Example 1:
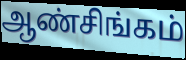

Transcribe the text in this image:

ஆண்சிங்கம்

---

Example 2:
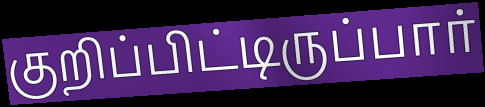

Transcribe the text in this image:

குறிப்பிட்டிருப்பார்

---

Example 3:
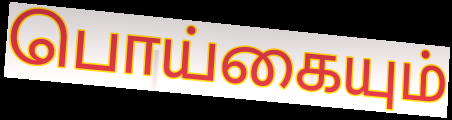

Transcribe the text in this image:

பொய்கையும்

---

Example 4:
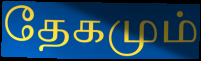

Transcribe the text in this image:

தேகமும்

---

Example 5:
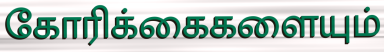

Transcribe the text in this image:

கோரிக்கைகளையும்